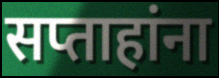
सप्ताहांना